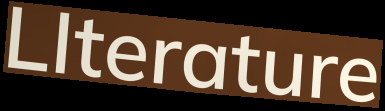
LIterature